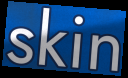
skin